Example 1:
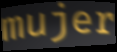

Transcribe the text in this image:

mujer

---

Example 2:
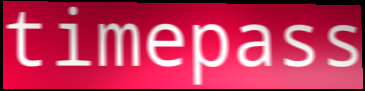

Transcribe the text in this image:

timepass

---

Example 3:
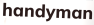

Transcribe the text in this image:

handyman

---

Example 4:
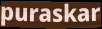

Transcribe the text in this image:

puraskar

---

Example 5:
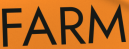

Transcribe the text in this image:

FARM